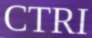
CTRI